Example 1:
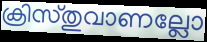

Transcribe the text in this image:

ക്രിസ്തുവാണല്ലോ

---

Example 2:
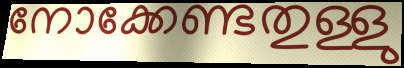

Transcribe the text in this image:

നോക്കേണ്ടതുള്ളു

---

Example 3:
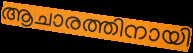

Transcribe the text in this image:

ആചാരത്തിനായി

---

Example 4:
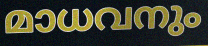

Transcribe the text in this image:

മാധവനും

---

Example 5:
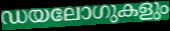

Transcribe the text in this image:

ഡയലോഗുകളും